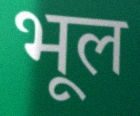
भूल